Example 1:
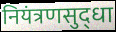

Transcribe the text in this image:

नियंत्रणसुद्धा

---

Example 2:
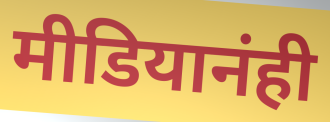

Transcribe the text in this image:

मीडियानंही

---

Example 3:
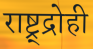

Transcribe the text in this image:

राष्ट्र्द्रोही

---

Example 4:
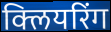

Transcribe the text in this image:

क्लियरिंग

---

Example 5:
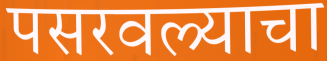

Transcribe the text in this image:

पसरवल्याचा